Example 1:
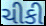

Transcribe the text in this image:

ચીકી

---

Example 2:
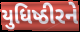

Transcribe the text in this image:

યુધિષ્ઠીરને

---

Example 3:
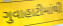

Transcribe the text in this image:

ગુવાહાટીમાંથી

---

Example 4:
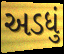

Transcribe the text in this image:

અડધું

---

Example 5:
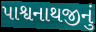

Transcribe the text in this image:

પાશ્વનાથજીનું